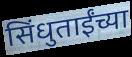
सिंधुताईंच्या